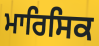
ਮਾਰਿਸਿਕ